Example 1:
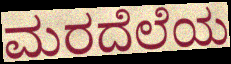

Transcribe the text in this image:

ಮರದೆಲೆಯ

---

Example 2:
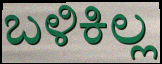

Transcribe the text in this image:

ಬಳಿಕಿಲ್ಲ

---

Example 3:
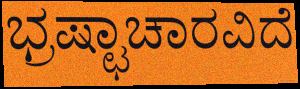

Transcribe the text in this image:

ಭ್ರಷ್ಟಾಚಾರವಿದೆ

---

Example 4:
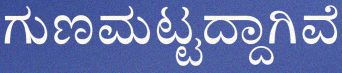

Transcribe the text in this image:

ಗುಣಮಟ್ಟದ್ದಾಗಿವೆ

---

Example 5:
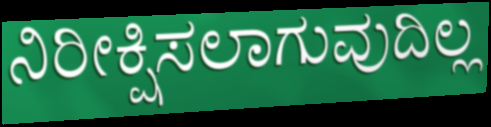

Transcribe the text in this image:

ನಿರೀಕ್ಷಿಸಲಾಗುವುದಿಲ್ಲ